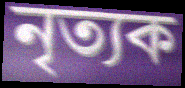
নৃত্যক